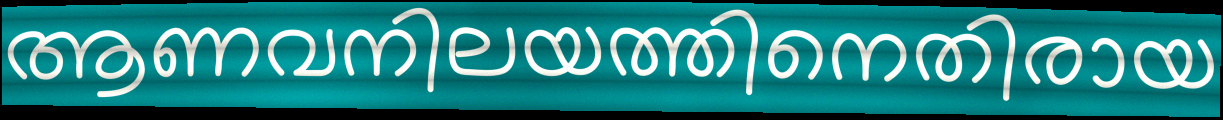
ആണവനിലയത്തിനെതിരായ